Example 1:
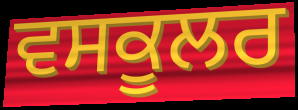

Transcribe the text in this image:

ਵਸਕੂਲਰ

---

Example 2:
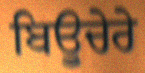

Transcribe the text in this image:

ਬਿਊਚੇਰੇ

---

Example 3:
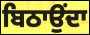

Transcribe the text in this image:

ਬਿਠਾਉਂਦਾ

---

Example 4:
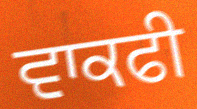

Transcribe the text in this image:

ਵਾਕਫੀ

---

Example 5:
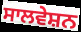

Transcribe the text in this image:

ਸਾਲਵੇਸ਼ਨ